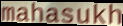
mahasukh